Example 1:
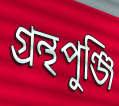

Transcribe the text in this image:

গ্রন্থপুঞ্জি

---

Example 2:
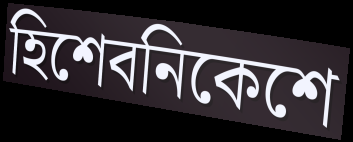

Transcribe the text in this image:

হিশেবনিকেশে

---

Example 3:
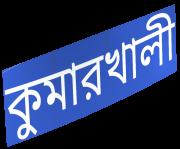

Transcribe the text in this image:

কুমারখালী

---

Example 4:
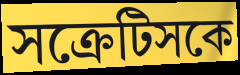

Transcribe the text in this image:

সক্রেটিসকে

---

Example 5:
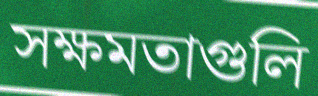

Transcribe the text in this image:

সক্ষমতাগুলি